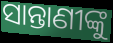
ସାନ୍ତାଣୀଙ୍କୁ